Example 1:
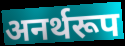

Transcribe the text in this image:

अनर्थरूप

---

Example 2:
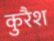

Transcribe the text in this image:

कुरैश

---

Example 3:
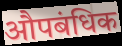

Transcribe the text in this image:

औपबंधिक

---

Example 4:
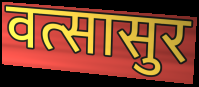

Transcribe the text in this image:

वत्सासुर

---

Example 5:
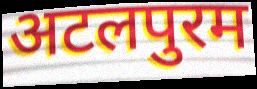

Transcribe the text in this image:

अटलपुरम